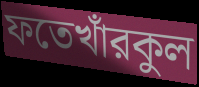
ফতেখাঁরকুল